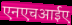
एनएचआईए